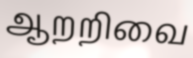
ஆறறிவை